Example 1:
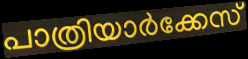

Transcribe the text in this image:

പാത്രിയാർക്കേസ്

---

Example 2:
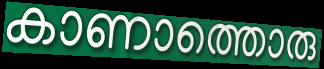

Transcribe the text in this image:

കാണാത്തൊരു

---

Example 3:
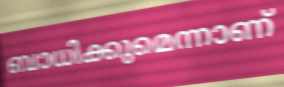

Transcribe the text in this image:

ബാധിക്കുമെന്നാണ്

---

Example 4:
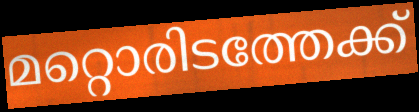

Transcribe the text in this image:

മറ്റൊരിടത്തേക്ക്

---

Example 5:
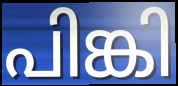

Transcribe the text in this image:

പിങ്കി